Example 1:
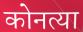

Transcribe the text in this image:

कोनत्या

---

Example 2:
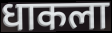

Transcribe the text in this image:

धाकला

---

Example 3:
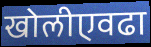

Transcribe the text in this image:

खोलीएवढा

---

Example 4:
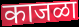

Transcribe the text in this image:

काजळा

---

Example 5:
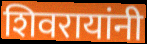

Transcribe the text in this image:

शिवरायांनी